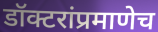
डॉक्टरांप्रमाणेच